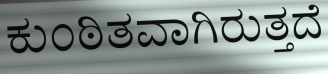
ಕುಂಠಿತವಾಗಿರುತ್ತದೆ